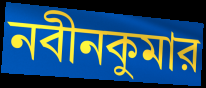
নবীনকুমার